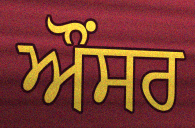
ਔਂਸਰ